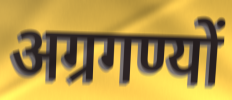
अग्रगण्यों